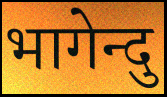
भागेन्दु